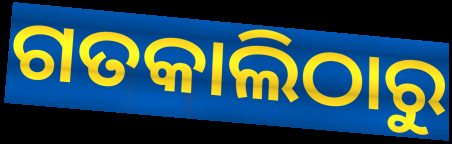
ଗତକାଲିଠାରୁ